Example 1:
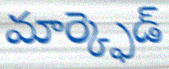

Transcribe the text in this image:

మార్క్ఫెడ్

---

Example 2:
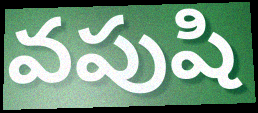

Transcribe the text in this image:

వపుషి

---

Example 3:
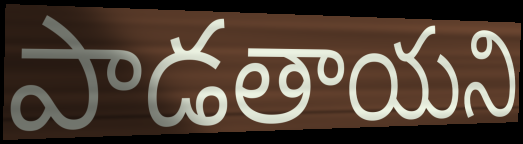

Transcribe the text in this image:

పాడతాయని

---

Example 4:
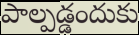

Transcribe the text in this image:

పాల్పడ్డందుకు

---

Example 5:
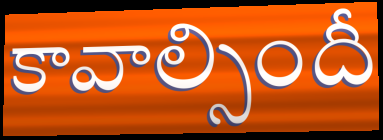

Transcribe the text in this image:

కావాల్సిందీ